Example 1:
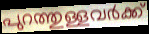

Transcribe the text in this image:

പുറത്തുള്ളവർക്ക്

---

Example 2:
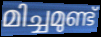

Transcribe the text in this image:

മിച്ചമുണ്ട്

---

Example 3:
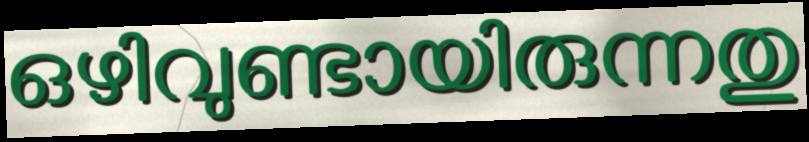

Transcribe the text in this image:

ഒഴിവുണ്ടായിരുന്നതു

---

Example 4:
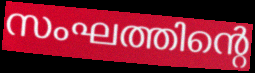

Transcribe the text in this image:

സംഘത്തിന്റെ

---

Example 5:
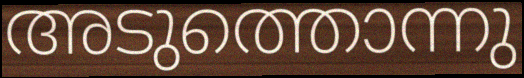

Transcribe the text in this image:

അടുത്തൊന്നു